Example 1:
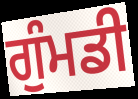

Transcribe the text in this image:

ਗੁੰਮਡੀ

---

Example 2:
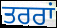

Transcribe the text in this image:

ਤਰਰਾਂ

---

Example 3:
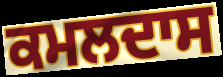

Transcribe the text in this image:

ਕਮਲਦਾਸ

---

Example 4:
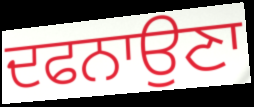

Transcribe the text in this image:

ਦਫਨਾਉਣਾ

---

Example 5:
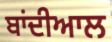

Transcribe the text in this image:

ਬਾਂਦੀਆਲ